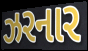
ઝરનાર